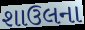
શાઉલના